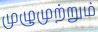
முழுமுற்றும்